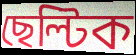
ছেল্টিক